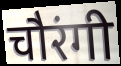
चौरंगी